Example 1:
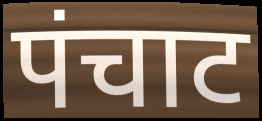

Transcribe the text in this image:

पंचाट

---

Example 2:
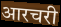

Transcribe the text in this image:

आरचरी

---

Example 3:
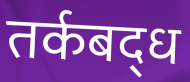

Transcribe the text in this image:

तर्कबद्ध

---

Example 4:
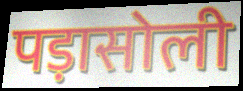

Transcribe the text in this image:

पड़ासोली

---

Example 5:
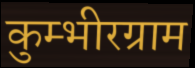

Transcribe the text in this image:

कुम्भीरग्राम